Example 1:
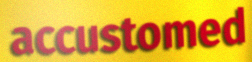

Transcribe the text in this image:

accustomed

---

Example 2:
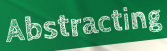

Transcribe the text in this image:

Abstracting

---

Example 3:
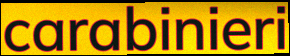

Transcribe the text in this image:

carabinieri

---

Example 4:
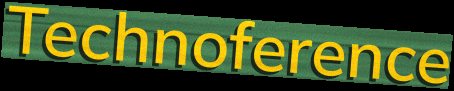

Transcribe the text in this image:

Technoference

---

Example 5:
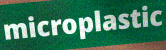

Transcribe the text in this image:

microplastic